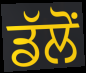
ਡੱਲੋਂ